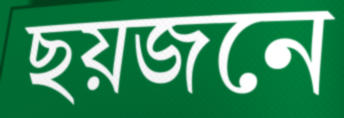
ছয়জনে